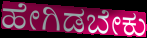
ಹೇಗಿಡಬೇಕು